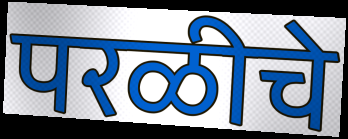
परळीचे